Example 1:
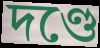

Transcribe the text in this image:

দণ্ডে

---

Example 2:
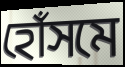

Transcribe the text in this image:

হোঁসমে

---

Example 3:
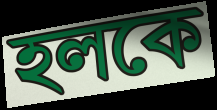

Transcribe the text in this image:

হলকে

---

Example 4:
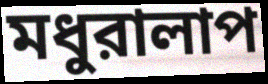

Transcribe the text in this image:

মধুরালাপ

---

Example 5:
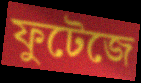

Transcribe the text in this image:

ফুটেজে